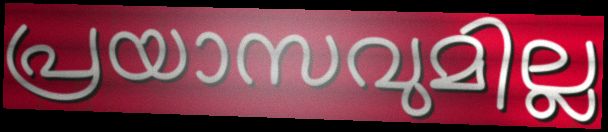
പ്രയാസവുമില്ല